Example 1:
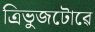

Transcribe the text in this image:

ত্ৰিভুজটোৱে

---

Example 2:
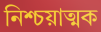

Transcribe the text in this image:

নিশ্চয়াত্মক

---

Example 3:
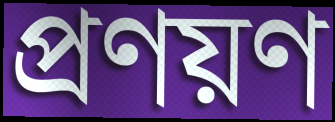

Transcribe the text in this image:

প্ৰণয়ণ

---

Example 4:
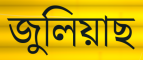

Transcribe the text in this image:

জুলিয়াছ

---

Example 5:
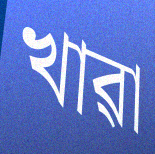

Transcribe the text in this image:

খাৱা